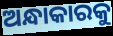
ଅନ୍ଧାକାରକୁ